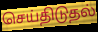
செய்திடுதல்